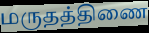
மருதத்திணை